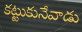
కట్టుకునేవాడు